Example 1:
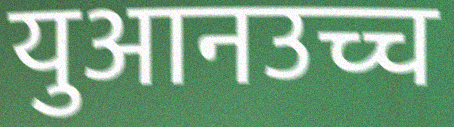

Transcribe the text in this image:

युआनउच्च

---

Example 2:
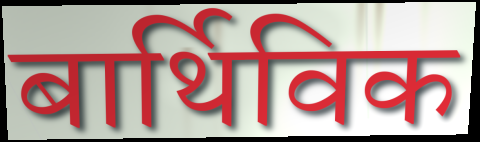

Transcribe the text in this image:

बार्थिविक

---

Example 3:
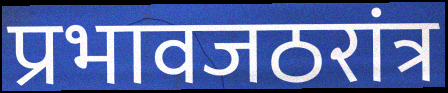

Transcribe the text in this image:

प्रभावजठरांत्र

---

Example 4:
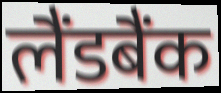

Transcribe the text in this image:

लैंडबैंक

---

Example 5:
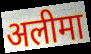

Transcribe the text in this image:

अलीमा